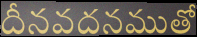
దీనవదనముతో